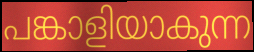
പങ്കാളിയാകുന്ന